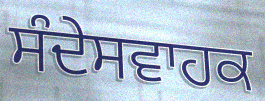
ਸੰਦੇਸਵਾਹਕ